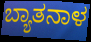
ಬ್ಯಾತನಾಳ